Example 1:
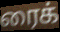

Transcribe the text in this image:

ரைக்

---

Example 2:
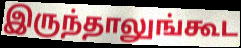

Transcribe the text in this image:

இருந்தாலுங்கூட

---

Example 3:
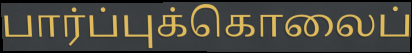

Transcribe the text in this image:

பார்ப்புக்கொலைப்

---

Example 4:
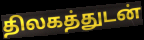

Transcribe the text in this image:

திலகத்துடன்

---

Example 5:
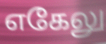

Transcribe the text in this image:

எகேலு